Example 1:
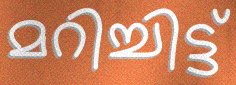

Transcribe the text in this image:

മറിച്ചിട്ട്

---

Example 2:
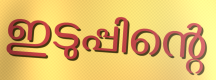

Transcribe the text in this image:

ഇടുപ്പിന്റെ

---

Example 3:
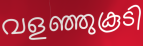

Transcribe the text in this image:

വളഞ്ഞുകൂടി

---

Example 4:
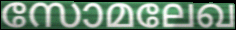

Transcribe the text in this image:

സോമലേഖ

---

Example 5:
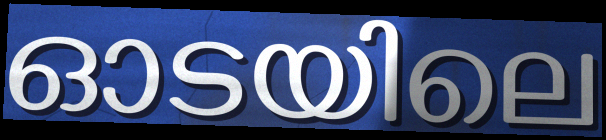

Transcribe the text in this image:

ഓടയിലെ